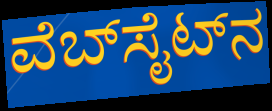
ವೆಬ್‍ಸೈಟ್‍ನ